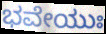
ಭವೇಯುಃ